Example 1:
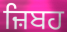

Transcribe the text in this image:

ਜ਼ਿਬਹ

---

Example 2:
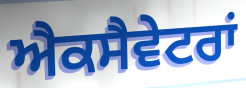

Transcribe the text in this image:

ਐਕਸੈਵੇਟਰਾਂ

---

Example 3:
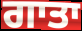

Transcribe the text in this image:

ਗਾਤਾ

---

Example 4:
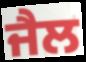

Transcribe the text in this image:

ਜੈਲ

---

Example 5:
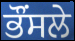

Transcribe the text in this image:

ਭੌਂਸਲੇ